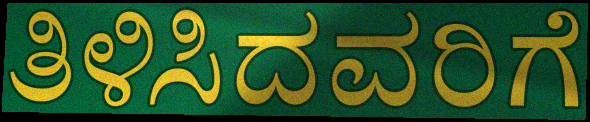
ತಿಳಿಸಿದವರಿಗೆ